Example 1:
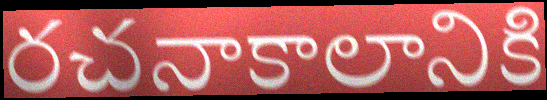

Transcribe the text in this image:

రచనాకాలానికి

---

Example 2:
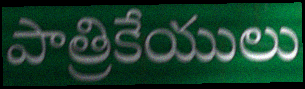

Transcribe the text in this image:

పాత్రికేయులు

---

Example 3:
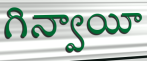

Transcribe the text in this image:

గిన్వాయీ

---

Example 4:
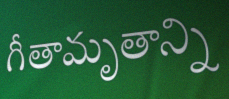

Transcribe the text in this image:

గీతామృతాన్ని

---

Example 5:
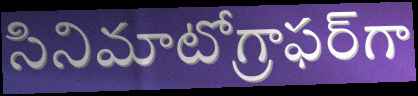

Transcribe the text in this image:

సినిమాటోగ్రాఫర్‌గా